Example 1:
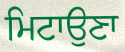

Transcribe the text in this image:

ਮਿਟਾਉਣਾ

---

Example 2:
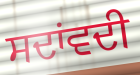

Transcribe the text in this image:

ਸਦਾਂਵਦੀ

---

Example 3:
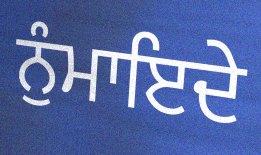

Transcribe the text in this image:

ਨੁੰਮਾਇਦੇ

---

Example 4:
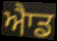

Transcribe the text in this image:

ਐਾਡ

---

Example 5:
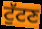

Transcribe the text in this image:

ਟੁੱਟਣ